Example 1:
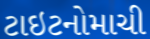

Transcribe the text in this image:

ટાઇટનોમાચી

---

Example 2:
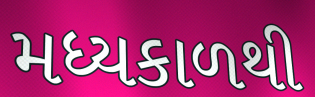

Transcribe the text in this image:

મધ્યકાળથી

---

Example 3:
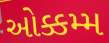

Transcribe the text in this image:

ઓક્કમ્મ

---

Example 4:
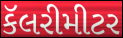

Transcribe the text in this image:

કૅલરીમીટર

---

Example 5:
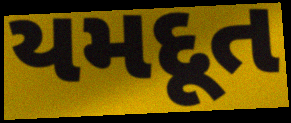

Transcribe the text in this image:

યમદૂત